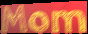
Mom